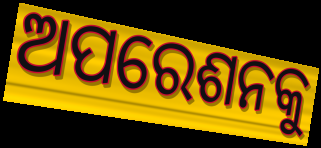
ଅପରେଶନକୁ